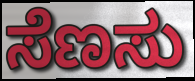
ಸೆಣಸು